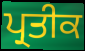
ਪ੍ਰਤੀਕ